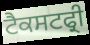
ਟੈਕਸਟਫ੍ਰੀ